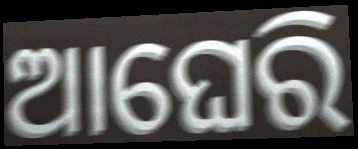
ଆଘେରି